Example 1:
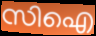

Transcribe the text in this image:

സിഐ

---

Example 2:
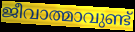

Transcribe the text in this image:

ജീവാത്മാവുണ്ട്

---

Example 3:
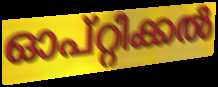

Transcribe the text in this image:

ഓപ്റ്റിക്കൽ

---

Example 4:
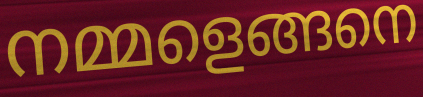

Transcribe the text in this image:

നമ്മളെങ്ങനെ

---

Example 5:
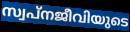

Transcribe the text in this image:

സ്വപ്നജീവിയുടെ